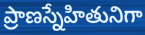
ప్రాణస్నేహితునిగా